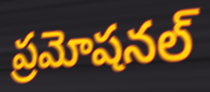
ప్రమోషనల్